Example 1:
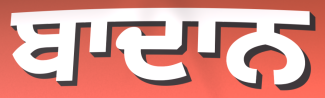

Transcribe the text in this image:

ਬਾਦਾਨ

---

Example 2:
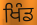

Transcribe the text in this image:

ਖਿੰਡ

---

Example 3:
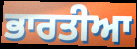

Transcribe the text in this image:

ਭਾਰਤੀਆ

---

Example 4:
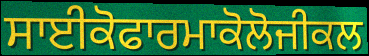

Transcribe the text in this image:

ਸਾਈਕੋਫਾਰਮਾਕੋਲੋਜੀਕਲ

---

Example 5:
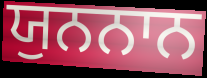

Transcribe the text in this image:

ਯੁਨਨਾਨ